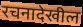
रचनादेखील